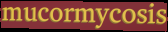
mucormycosis